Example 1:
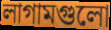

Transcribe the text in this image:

লাগামগুলো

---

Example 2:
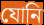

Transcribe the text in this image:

যোনি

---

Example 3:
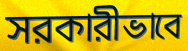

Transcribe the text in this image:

সরকারীভাবে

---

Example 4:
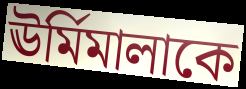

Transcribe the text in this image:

ঊর্মিমালাকে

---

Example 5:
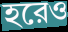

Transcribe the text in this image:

হরেও